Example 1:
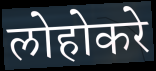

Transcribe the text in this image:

लोहोकरे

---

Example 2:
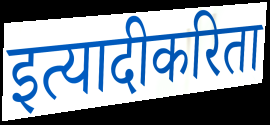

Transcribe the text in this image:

इत्यादीकरिता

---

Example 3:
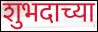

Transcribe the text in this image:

शुभदाच्या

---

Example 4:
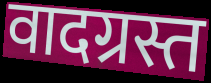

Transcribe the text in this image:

वादग्रस्त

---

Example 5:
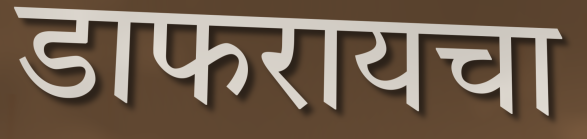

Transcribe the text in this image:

डाफरायचा